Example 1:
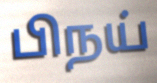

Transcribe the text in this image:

பிநய்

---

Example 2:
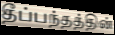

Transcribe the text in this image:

தீப்பந்தத்தின்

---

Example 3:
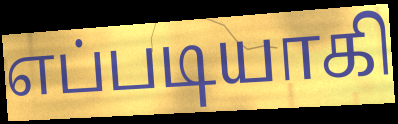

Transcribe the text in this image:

எப்படியாகி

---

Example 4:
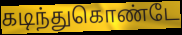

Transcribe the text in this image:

கடிந்துகொண்டே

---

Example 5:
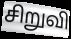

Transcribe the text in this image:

சிறுவி